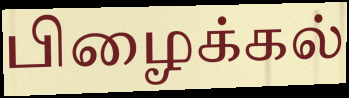
பிழைக்கல்